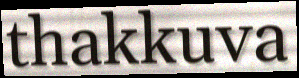
thakkuva